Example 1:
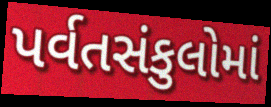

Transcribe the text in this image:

પર્વતસંકુલોમાં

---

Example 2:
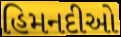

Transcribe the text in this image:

હિમનદીઓ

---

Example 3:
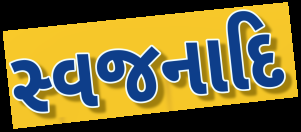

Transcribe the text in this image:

સ્વજનાદિ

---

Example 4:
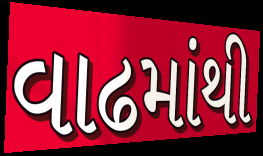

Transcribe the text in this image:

વાઢમાંથી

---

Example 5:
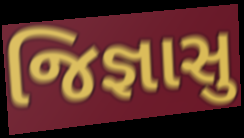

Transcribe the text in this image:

જિજ્ઞાસુ